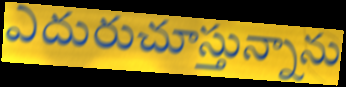
ఎదురుచూస్తున్నాను